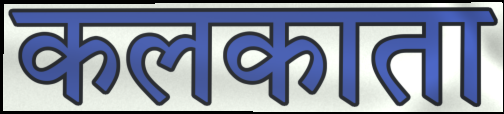
कलकाता